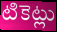
టికెట్లు